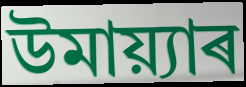
উমায়্যাৰ